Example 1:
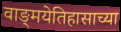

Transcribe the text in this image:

वाङ्‌मयेतिहासाच्या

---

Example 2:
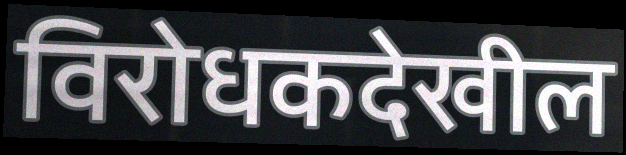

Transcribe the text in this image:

विरोधकदेखील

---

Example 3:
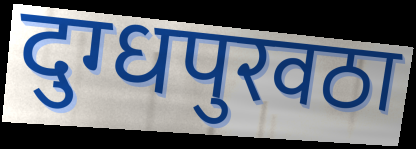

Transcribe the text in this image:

दुग्धपुरवठा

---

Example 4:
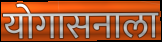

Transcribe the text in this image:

योगासनाला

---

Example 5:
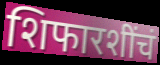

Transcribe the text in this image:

शिफारशींचं